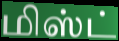
மிஸ்ட்